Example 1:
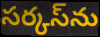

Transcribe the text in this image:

సర్కస్‌ను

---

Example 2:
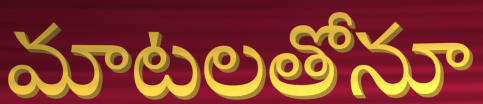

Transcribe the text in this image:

మాటలతోనూ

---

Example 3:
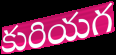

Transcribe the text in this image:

కురియగ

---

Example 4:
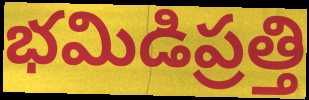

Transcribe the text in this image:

భమిడిప్రత్తి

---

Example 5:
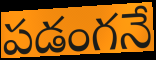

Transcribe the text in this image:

పడంగనే